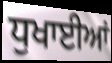
ਧੁਖਾਈਆਂ